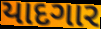
યાદગાર